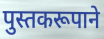
पुस्तकरूपाने